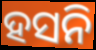
ହସନି